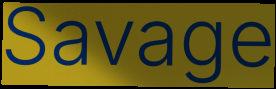
Savage